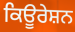
ਕਿਊਰੇਸ਼ਨ